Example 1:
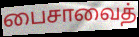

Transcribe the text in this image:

பைசாவைத்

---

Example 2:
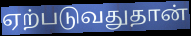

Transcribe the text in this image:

ஏற்படுவதுதான்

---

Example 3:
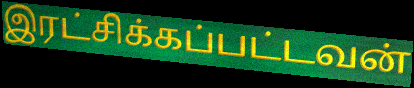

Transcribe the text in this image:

இரட்சிக்கப்பட்டவன்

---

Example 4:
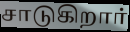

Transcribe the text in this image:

சாடுகிறார்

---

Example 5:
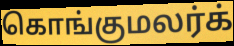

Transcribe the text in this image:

கொங்குமலர்க்